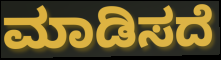
ಮಾಡಿಸದೆ